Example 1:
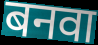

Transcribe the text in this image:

बनवा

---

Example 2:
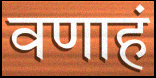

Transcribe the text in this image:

वणाहं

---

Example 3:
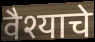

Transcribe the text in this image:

वैश्याचे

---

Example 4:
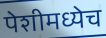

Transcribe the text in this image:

पेशीमध्येच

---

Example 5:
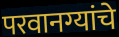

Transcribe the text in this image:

परवानग्यांचे